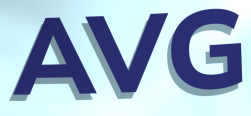
AVG